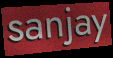
sanjay